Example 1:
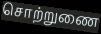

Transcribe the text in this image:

சொற்றுணை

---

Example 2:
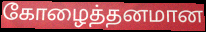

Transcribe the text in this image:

கோழைத்தனமான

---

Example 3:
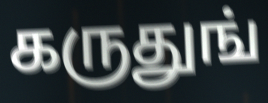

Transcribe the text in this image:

கருதுங்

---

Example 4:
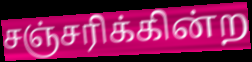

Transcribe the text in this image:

சஞ்சரிக்கின்ற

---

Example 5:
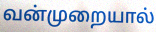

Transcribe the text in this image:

வன்முறையால்